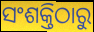
ସଂଶକ୍ତିଠାରୁ